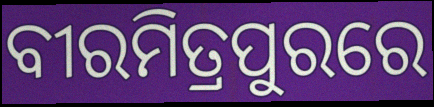
ବୀରମିତ୍ରପୁରରେ